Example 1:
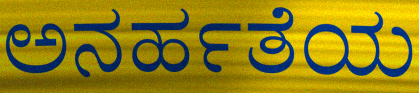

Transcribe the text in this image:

ಅನರ್ಹತೆಯ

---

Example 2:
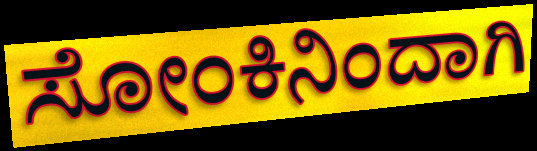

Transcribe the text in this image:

ಸೋಂಕಿನಿಂದಾಗಿ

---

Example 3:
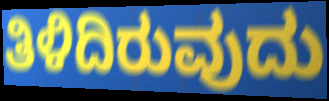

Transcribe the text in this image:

ತಿಳಿದಿರುವುದು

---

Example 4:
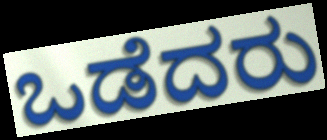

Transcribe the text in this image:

ಒಡೆದರು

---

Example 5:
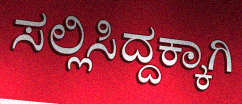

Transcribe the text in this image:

ಸಲ್ಲಿಸಿದ್ದಕ್ಕಾಗಿ